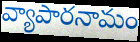
వ్యాపారనామం